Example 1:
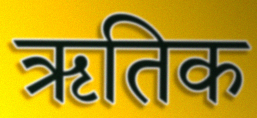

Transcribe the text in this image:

ऋतिक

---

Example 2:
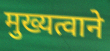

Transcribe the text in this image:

मुख्यत्वाने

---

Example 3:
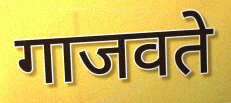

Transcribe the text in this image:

गाजवते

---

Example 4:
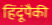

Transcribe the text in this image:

हिंदूंपैकी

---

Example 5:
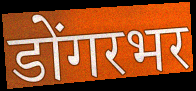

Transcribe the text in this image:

डोंगरभर